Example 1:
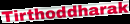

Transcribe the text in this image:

Tirthoddharak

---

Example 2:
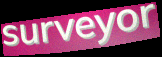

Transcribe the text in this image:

surveyor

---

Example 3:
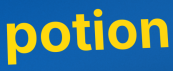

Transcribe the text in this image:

potion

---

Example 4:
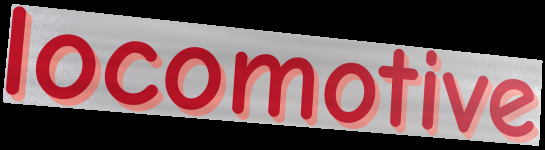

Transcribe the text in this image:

locomotive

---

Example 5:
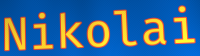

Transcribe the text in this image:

Nikolai